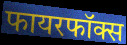
फायरफॉक्स